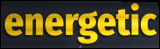
energetic